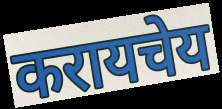
करायचेय